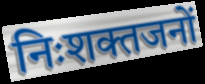
निःशक्तजनों